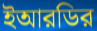
ইআরডির